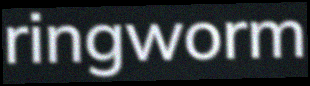
ringworm